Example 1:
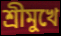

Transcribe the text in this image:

শ্রীমুখে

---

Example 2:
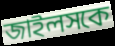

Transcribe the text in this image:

জাইলসকে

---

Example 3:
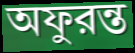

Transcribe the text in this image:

অফুরন্ত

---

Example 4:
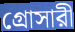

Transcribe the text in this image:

গ্রোসারী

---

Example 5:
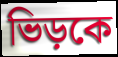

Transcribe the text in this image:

ভিড়কে